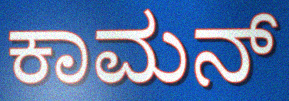
ಕಾಮನ್